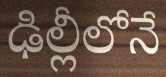
ఢిల్లీలోనే